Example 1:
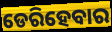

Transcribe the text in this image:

ଡେରିହେବାର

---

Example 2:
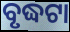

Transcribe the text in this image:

ବୃଦ୍ଧଟା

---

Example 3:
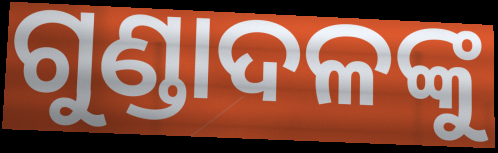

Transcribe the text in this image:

ଗୁଣ୍ଡାଦଳଙ୍କୁ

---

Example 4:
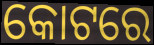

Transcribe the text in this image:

କୋଟରେ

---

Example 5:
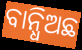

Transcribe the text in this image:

ବାନ୍ଧିଅଛ